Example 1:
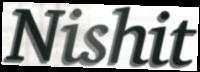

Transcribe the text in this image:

Nishit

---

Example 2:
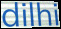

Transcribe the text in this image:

dilhi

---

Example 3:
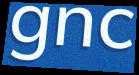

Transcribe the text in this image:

gnc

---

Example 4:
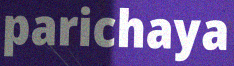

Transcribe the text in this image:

parichaya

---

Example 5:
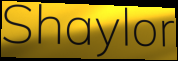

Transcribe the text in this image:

Shaylor